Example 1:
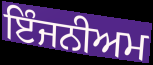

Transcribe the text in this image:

ਇੰਜਨੀਅਮ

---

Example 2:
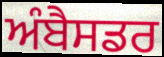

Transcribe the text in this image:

ਅੰਬੈਸਡਰ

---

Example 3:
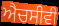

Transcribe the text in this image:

ਐਚਸੀਵੀ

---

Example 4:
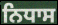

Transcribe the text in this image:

ਨਿਧਾਸ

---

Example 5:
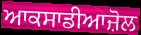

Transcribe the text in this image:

ਆਕਸਾਡੀਆਜ਼ੋਲ